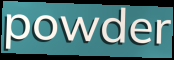
powder